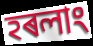
হৰলাং